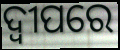
ଦ୍ୱୀପରେ